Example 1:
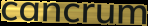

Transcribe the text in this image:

cancrum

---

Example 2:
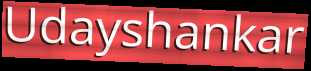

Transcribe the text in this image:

Udayshankar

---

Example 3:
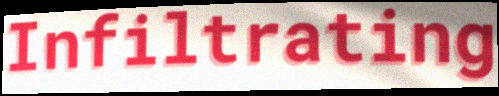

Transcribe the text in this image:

Infiltrating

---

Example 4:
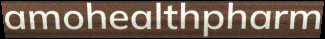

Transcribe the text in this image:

amohealthpharm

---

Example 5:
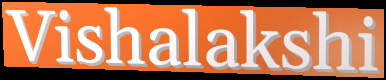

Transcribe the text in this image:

Vishalakshi